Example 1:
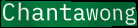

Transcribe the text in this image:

Chantawong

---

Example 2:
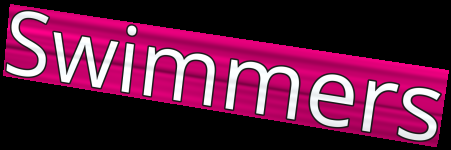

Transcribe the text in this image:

Swimmers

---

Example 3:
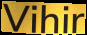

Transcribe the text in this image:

Vihir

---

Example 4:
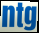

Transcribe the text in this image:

ntg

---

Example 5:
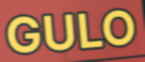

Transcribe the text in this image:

GULO